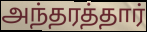
அந்தரத்தார்